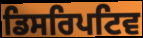
ਡਿਸਰਿਪਟਿਵ